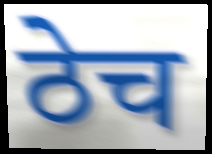
ठेच